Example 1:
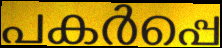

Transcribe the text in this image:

പകർപ്പെ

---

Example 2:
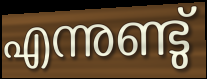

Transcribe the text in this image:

എന്നുണ്ടു്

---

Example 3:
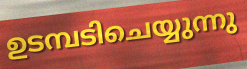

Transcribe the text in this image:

ഉടമ്പടിചെയ്യുന്നു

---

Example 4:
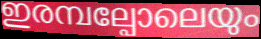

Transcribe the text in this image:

ഇരമ്പല്പോലെയും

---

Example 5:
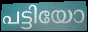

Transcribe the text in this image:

പട്ടിയോ